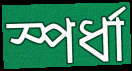
স্পর্ধা